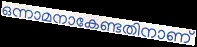
ഒന്നാമനാകേണ്ടതിനാണ്